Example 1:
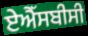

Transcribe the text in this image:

ਏਐੱਸਬੀਸੀ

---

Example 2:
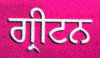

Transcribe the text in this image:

ਗ੍ਰੀਟਨ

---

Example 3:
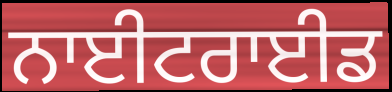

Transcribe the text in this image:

ਨਾਈਟਰਾਈਡ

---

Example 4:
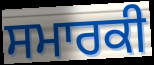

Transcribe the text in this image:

ਸਮਾਰਕੀ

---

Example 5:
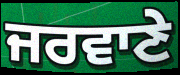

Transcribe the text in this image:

ਜਰਵਾਣੇ